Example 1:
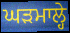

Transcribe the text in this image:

ਘੜਮਾਲ੍ਹੇ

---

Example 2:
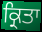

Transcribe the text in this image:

ਕ੍ਰਿਤਾ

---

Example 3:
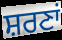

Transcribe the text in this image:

ਸ਼ਰਣਾਂ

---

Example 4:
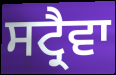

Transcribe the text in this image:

ਸਟ੍ਰੈਵਾ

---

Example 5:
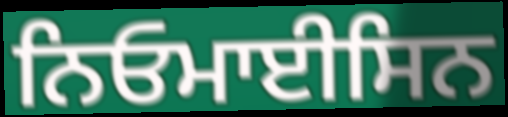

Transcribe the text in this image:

ਨਿਓਮਾਈਸਿਨ